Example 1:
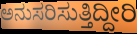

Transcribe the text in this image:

ಅನುಸರಿಸುತ್ತಿದ್ದೀರಿ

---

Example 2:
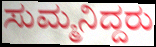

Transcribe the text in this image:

ಸುಮ್ಮನಿದ್ದರು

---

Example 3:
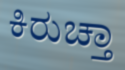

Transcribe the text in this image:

ಕಿರುಚ್ತಾ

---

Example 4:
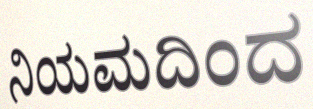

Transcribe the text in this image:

ನಿಯಮದಿಂದ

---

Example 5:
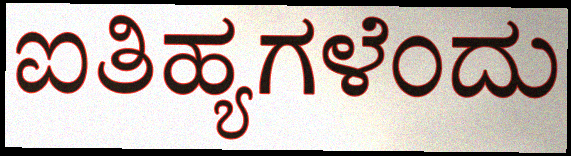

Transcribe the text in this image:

ಐತಿಹ್ಯಗಳೆಂದು